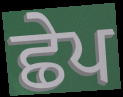
ਛੇਪ